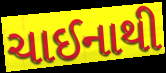
ચાઈનાથી